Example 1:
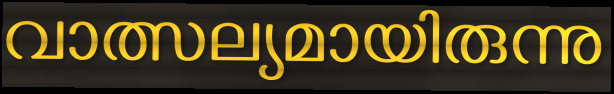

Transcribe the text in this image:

വാത്സല്യമായിരുന്നു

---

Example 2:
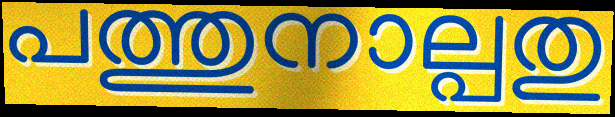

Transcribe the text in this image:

പത്തുനാല്പതു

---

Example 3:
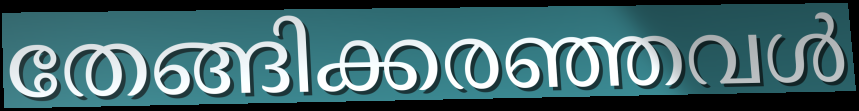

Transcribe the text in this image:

തേങ്ങിക്കരഞ്ഞവൾ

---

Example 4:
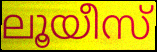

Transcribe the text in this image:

ലൂയീസ്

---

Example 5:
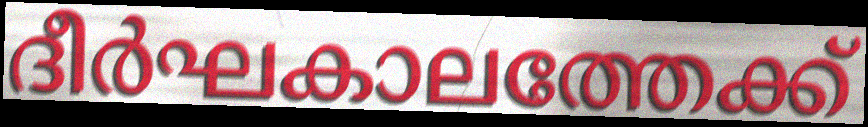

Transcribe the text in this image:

ദീർഘകാലത്തേക്ക്